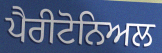
ਪੈਰੀਟੋਨਿਅਲ